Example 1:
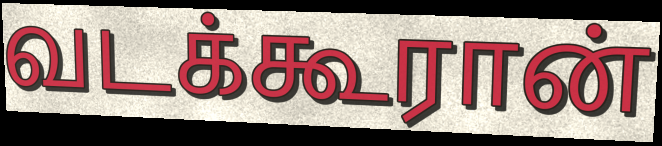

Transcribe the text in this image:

வடக்கூரான்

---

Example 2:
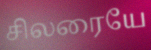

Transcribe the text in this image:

சிலரையே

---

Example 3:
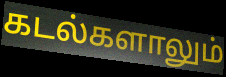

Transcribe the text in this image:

கடல்களாலும்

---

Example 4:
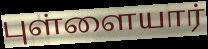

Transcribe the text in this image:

புள்ளையார்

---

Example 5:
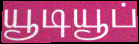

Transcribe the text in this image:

யூடியூப்